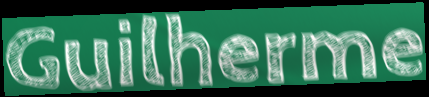
Guilherme